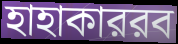
হাহাকাররব